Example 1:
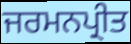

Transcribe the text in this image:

ਜਰਮਨਪ੍ਰੀਤ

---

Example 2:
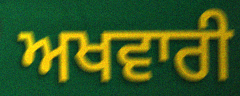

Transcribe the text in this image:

ਅਖਵਾਰੀ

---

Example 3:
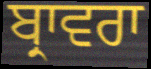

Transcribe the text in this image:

ਬ੍ਰਾਵਰਾ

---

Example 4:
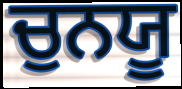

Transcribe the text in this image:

ਚੁਨਯੂ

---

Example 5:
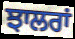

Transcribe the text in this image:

ਝਾਲਰਾਂ